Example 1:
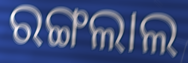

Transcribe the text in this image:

ରଙ୍ଗଲାଲ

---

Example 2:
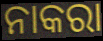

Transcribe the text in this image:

ନାକରା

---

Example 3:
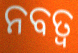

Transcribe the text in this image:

ନବତ୍ଵ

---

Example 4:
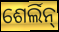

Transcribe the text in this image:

ଶେର୍ଲିନ୍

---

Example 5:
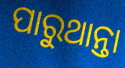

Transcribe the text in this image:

ପାରୁଥାନ୍ତା